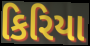
કિરિયા